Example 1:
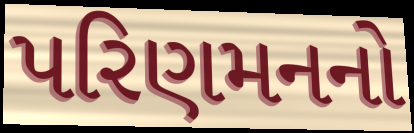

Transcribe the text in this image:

પરિણમનનો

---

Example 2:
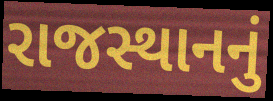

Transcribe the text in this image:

રાજસ્થાનનું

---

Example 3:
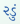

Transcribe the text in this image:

રડું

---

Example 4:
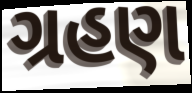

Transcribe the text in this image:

ગ્રહણ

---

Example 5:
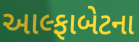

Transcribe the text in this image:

આલ્ફાબેટના